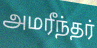
அமரீந்தர்